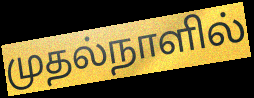
முதல்நாளில்